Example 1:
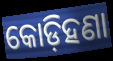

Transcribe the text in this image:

କୋଡ଼ିହଣା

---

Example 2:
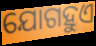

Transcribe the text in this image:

ଯୋଗହୁଏ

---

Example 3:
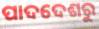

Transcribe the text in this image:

ପାଦଦେଶରୁ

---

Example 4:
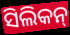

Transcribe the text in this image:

ସିଲିକନ୍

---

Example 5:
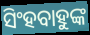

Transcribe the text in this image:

ସିଂହବାହୁଙ୍କ